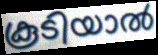
കൂടിയാൽ